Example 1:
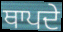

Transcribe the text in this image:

ਥਾਪਦੇ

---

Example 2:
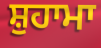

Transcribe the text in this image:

ਸ਼ੁਹਾਮਾ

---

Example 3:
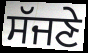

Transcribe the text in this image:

ਸੱਜਣੇ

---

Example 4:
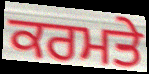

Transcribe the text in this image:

ਕਰਮਤੇ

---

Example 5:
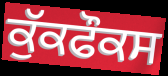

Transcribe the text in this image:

ਕੁੱਕਫੌਕਸ